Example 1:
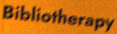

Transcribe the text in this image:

Bibliotherapy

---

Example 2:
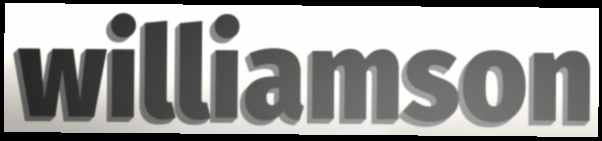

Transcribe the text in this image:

williamson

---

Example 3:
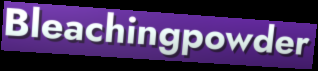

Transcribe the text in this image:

Bleachingpowder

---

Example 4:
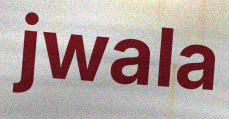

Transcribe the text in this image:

jwala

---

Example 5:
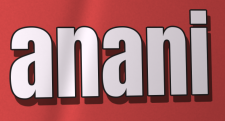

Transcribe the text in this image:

anani